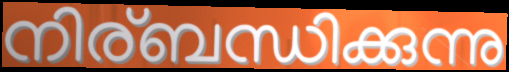
നിര്ബന്ധിക്കുന്നു